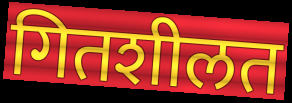
गितशीलत